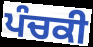
ਪੰਚਕੀ